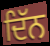
ਦਿੱਨ